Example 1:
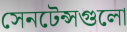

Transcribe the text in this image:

সেনটেন্সগুলো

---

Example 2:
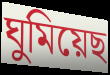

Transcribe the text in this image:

ঘুমিয়েছ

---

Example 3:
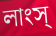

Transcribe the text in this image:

লাংস্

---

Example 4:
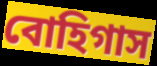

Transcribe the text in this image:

বোহিগাস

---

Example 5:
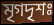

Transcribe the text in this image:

মৃগদৃশঃ